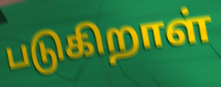
படுகிறாள்